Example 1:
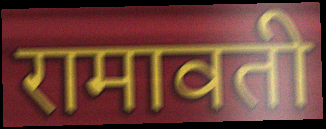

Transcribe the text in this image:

रामावती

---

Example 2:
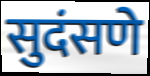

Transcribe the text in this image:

सुदंसणे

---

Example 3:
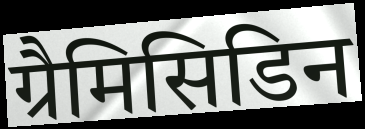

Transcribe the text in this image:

ग्रैमिसिडिन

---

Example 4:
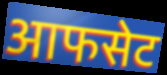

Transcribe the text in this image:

आफसेट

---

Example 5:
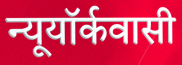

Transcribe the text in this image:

न्यूयॉर्कवासी